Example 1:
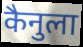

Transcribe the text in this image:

कैनुला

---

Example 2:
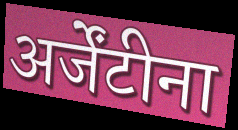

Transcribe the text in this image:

अर्जेंटीना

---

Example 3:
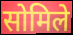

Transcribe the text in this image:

सोमिले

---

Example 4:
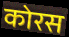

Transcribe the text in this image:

कोरस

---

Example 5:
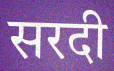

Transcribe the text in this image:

सरदी